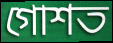
গোশত